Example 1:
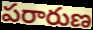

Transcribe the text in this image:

పరారుణ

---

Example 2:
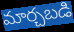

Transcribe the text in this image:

మార్చబడి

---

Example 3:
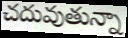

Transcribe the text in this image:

చదువుతున్నా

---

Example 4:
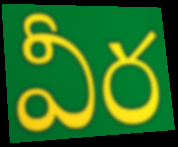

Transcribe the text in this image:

వీర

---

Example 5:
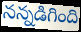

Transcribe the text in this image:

నన్నడిగింది